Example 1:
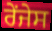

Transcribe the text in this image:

ਰੇਂਜੇਸ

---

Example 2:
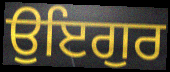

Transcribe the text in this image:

ਉਇਗੁਰ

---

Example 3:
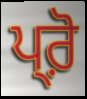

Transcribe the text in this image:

ਪ੍ਰ਼ੋ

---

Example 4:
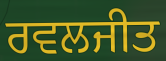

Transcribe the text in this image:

ਰਵਲਜੀਤ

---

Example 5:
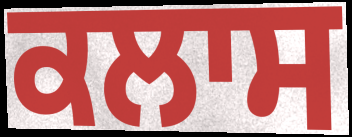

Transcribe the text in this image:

ਕਲਾਸ